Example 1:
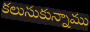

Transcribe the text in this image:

కలుసుకున్నాము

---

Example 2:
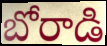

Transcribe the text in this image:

బోరాడి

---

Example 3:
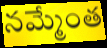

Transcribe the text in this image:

నమ్మేంత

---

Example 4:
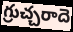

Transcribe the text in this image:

గ్రుచ్చరాదె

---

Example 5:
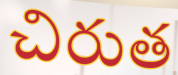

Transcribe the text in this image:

చిరుత